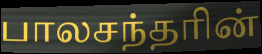
பாலசந்தரின்